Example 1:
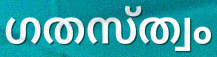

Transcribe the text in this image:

ഗതസ്ത്വം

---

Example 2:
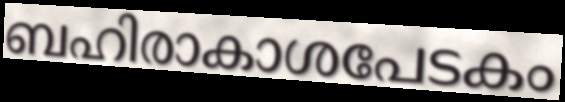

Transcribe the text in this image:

ബഹിരാകാശപേടകം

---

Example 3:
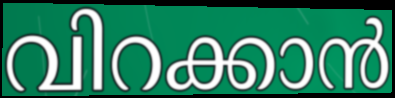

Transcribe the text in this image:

വിറക്കാൻ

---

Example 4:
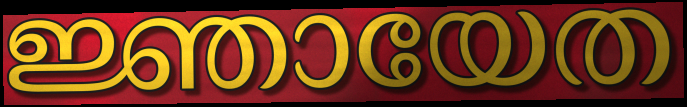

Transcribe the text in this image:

ജ്ഞായേത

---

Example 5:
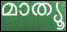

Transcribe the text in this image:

മാത്യൂ